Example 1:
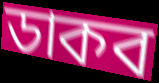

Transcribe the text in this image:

ডাকব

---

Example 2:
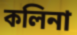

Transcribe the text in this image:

কলিনা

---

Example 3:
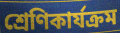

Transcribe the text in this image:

শ্রেণিকার্যক্রম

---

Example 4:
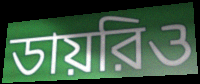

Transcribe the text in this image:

ডায়রিও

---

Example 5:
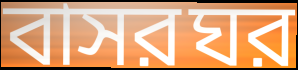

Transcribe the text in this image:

বাসরঘর